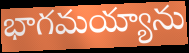
భాగమయ్యాను